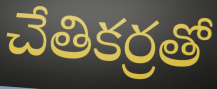
చేతికర్రతో